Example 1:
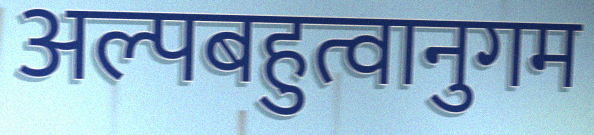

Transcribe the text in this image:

अल्पबहुत्वानुगम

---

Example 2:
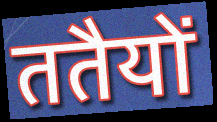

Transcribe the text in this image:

ततैयों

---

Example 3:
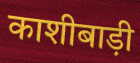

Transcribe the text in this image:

काशीबाड़ी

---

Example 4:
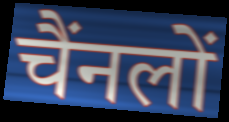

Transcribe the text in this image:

चैंनलों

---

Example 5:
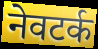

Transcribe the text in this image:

नेवटर्क